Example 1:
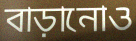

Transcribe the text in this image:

বাড়ানোও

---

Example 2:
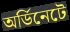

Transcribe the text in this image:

অর্ডিনেটে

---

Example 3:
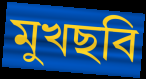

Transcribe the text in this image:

মুখছবি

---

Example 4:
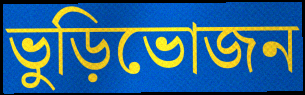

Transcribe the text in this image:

ভুড়িভোজন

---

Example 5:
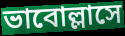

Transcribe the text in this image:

ভাবোল্লাসে